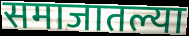
समाजातल्या